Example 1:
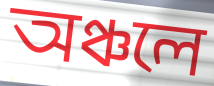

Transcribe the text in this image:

অঞ্চলে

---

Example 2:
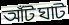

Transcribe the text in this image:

আঁটঘাট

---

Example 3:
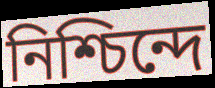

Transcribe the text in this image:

নিশ্চিন্দে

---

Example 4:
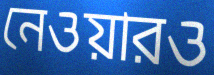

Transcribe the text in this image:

নেওয়ারও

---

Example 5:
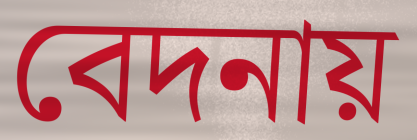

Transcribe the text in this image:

বেদনায়